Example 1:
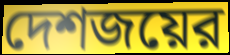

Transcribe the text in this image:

দেশজয়ের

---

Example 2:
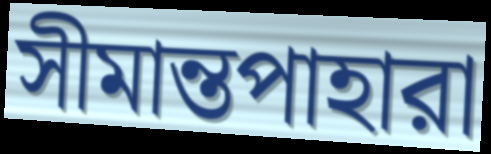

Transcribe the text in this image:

সীমান্তপাহারা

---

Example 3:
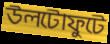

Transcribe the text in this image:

উলটোফুটে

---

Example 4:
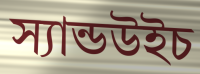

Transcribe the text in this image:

স্যান্ডউইচ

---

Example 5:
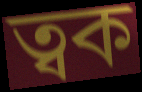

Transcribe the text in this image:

ত্বক